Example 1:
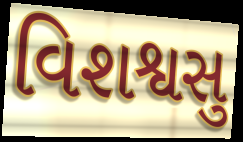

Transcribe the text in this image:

વિશશ્વસુ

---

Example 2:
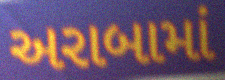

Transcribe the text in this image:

અરાબામાં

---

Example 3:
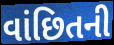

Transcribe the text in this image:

વાંછિતની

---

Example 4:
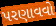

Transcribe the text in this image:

પરણાવવો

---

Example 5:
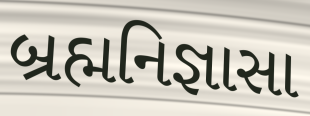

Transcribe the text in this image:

બ્રહ્મનિજ્ઞાસા